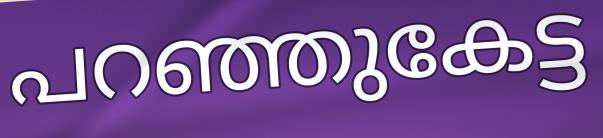
പറഞ്ഞുകേട്ട